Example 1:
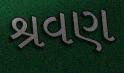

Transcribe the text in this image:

શ્રવણ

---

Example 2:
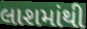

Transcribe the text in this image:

લાશમાંથી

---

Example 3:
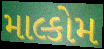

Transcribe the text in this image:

માલ્કોમ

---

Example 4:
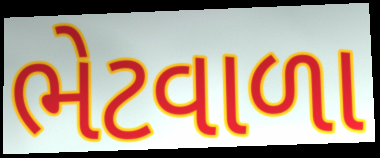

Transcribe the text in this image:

ભેટવાળા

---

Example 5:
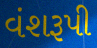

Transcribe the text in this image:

વંશરૂપી